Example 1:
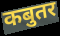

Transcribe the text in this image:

कबुतर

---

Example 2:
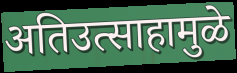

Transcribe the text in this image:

अतिउत्साहामुळे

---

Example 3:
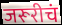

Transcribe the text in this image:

जरूरीचं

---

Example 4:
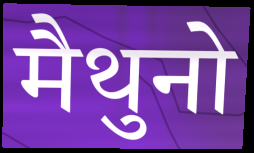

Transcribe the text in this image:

मैथुनो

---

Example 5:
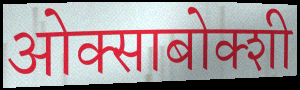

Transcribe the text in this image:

ओक्साबोक्शी